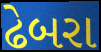
ઢેબરા